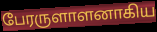
பேரருளாளனாகிய